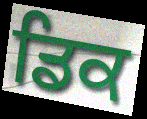
ਡਿਕ